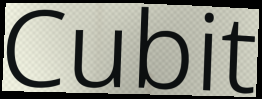
Cubit